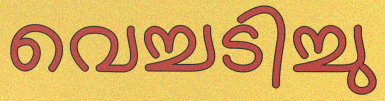
വെച്ചടിച്ചു